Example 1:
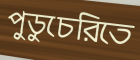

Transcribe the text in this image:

পুডুচেরিতে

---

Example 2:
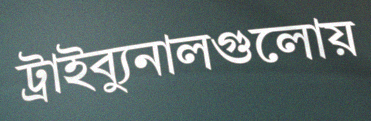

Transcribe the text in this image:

ট্রাইব্যুনালগুলোয়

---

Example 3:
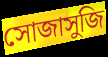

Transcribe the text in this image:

সোজাসুজি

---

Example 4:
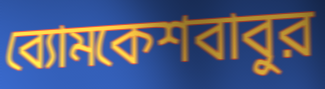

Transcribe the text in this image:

ব্যোমকেশবাবুর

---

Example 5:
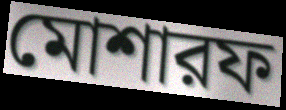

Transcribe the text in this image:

মোশারফ